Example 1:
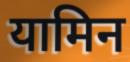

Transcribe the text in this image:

यामिन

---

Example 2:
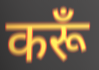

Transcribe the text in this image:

करूँ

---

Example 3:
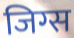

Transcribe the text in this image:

जिग्स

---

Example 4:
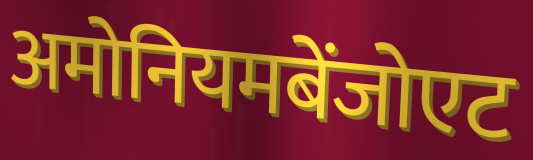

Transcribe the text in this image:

अमोनियमबेंजोएट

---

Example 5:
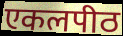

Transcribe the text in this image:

एकलपीठ